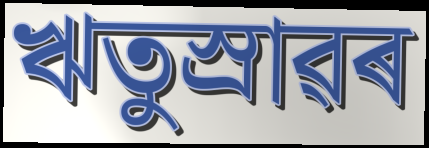
ঋতুস্ৰাৱৰ